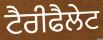
ਟੈਰੀਫੈਲੇਟ